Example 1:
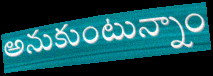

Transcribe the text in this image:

అనుకుంటున్నాం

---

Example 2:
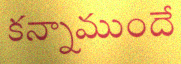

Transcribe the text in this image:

కన్నాముందే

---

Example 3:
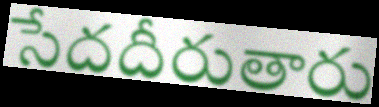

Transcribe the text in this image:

సేదదీరుతారు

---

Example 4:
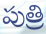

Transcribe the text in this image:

పుత్రి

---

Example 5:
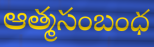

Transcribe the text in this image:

ఆత్మసంబంధ